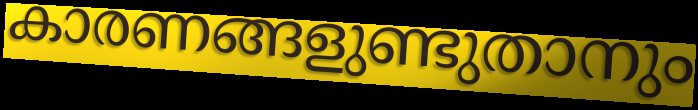
കാരണങ്ങളുണ്ടുതാനും